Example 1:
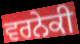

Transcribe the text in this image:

ਵਰਨੇਕੀ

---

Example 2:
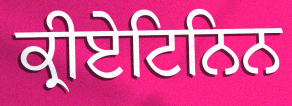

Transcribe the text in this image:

ਕ੍ਰੀਏਟਿਨਿਨ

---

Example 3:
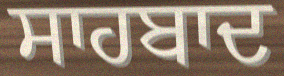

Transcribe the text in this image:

ਸਾਹਬਾਦ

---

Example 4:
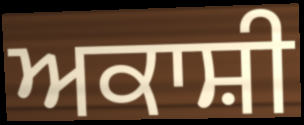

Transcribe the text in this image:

ਅਕਾਸ਼ੀ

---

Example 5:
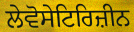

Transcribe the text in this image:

ਲੇਵੋਸੇਟਿਰਿਜ਼ੀਨ